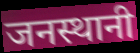
जनस्थानी